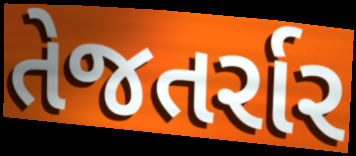
તેજતર્રાર